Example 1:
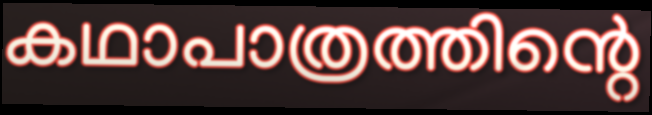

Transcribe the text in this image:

കഥാപാത്രത്തിന്റെ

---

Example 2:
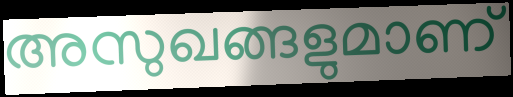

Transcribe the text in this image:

അസുഖങ്ങളുമാണ്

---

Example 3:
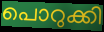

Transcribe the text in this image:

പൊറുക്കി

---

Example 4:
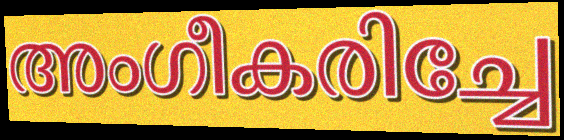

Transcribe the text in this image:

അംഗീകരിച്ചേ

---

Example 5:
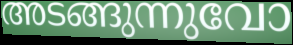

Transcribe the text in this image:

അടങ്ങുന്നുവോ